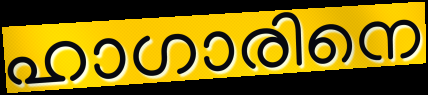
ഹാഗാരിനെ